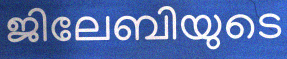
ജിലേബിയുടെ